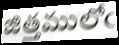
జిత్తములోఁ